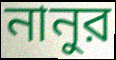
নানুর